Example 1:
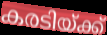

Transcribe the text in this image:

കരടിയ്ക്ക്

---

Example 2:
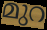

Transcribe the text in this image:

മുറ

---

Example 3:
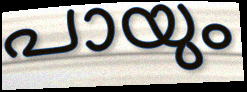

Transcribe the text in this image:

പായും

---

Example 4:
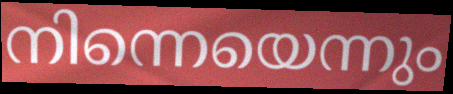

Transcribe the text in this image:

നിന്നെയെന്നും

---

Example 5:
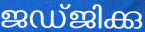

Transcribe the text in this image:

ജഡ്ജിക്കു